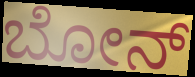
ಬೋನ್